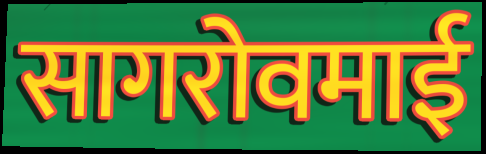
सागरोवमाई